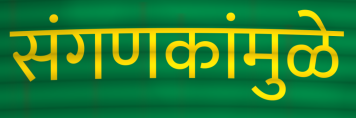
संगणकांमुळे